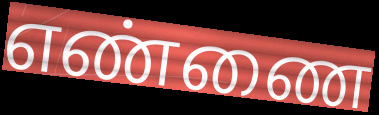
எண்ணை